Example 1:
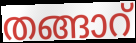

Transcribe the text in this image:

തങ്ങാറ്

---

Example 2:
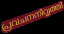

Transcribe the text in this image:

പ്രവചനനിവൃത്തി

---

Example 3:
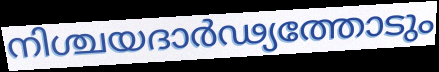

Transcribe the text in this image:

നിശ്ചയദാർഢ്യത്തോടും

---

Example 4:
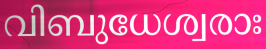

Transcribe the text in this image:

വിബുധേശ്വരാഃ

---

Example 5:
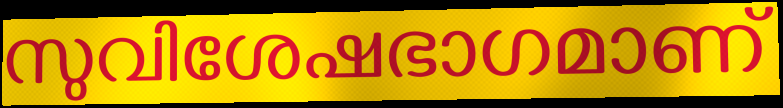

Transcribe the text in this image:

സുവിശേഷഭാഗമാണ്